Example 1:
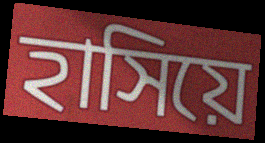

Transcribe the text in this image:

হাসিয়ে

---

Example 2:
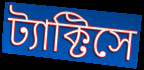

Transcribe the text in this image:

ট্যাক্টিসে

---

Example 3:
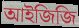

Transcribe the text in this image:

আইজিজি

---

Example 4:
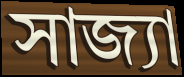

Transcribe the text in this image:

সাজ্যা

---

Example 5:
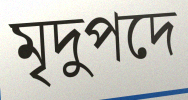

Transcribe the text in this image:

মৃদুপদে